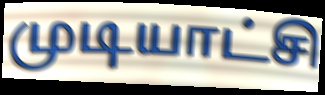
முடியாட்சி